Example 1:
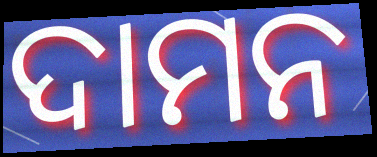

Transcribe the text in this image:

ଦାମନ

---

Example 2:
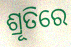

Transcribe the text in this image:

ଶ୍ରୂତିରେ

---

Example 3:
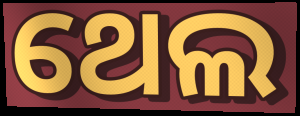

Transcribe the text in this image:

ଥେଲ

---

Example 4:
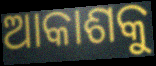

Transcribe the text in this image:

ଆକାଶକୁ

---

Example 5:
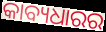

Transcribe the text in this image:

କାବ୍ୟଧାରର